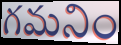
గమనిం